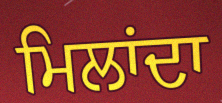
ਮਿਲਾਂਦਾ